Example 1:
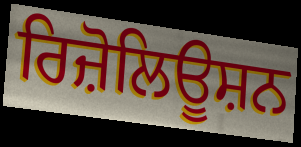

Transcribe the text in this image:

ਰਿਜ਼ੋਲਿਊਸ਼ਨ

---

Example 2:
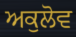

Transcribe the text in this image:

ਅਕੁਲੋਵ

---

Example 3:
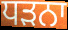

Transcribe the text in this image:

ਧੜਨਾ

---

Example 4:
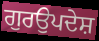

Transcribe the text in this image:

ਗੁਰਉਪਦੇਸ਼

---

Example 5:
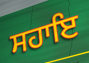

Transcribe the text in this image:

ਸਹਾਇ